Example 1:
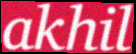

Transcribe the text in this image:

akhil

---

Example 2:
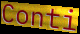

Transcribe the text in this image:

Conti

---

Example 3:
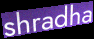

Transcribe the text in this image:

shradha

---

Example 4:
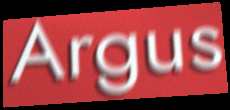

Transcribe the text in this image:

Argus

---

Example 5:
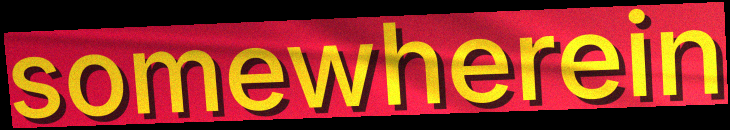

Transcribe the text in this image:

somewherein